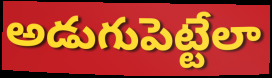
అడుగుపెట్టేలా